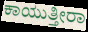
ಕಾಯುತ್ತೀರಾ